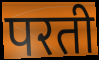
परती